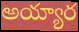
అయ్యార